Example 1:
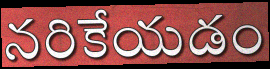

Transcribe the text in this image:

నరికేయడం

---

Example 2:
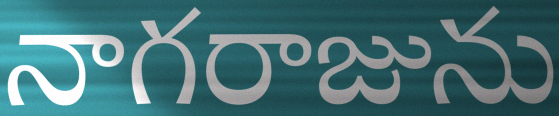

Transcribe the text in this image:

నాగరాజును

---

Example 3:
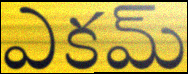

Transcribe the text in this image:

ఎకమ్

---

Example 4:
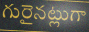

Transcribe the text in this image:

గురైనట్లుగా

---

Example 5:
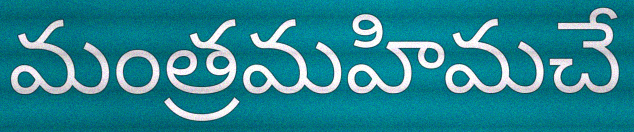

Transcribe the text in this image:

మంత్రమహిమచే